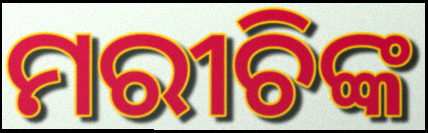
ମରୀଚିଙ୍କ